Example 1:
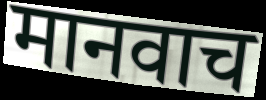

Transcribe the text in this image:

मानवाच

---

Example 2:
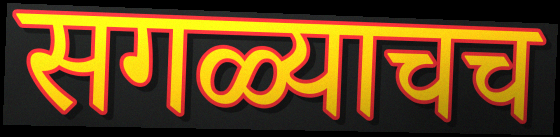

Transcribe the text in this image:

सगळ्याचच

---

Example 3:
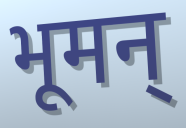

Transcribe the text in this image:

भूमन्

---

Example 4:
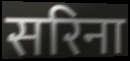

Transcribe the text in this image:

सरिना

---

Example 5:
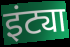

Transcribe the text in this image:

इंट्या